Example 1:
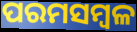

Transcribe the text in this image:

ପରମସମ୍ବଳ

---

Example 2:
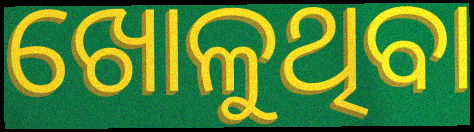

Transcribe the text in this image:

ଖୋଳୁଥିବା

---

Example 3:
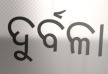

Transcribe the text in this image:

ଦୁର୍ବଳା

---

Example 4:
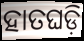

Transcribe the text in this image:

ହାତଘଡ଼ି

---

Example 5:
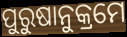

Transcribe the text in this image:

ପୁରୁଷାନୁକ୍ରମେ